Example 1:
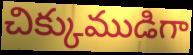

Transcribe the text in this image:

చిక్కుముడిగా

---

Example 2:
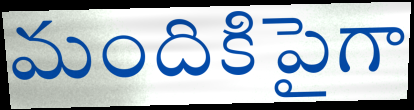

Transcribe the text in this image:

మందికిపైగా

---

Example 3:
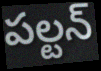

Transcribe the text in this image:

పల్టన్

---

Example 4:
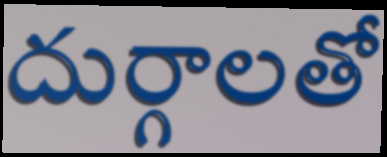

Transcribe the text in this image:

దుర్గాలతో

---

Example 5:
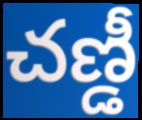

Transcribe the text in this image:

చణ్డీ